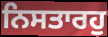
ਨਿਸਤਾਰਹੁ